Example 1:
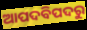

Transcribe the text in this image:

ଆପଦବିପଦରୁ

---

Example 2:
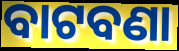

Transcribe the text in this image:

ବାଟବଣା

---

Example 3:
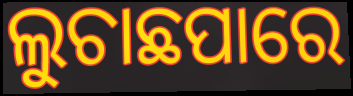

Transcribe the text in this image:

ଲୁଚାଛପାରେ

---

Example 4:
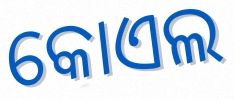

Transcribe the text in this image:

କୋଏଲ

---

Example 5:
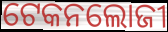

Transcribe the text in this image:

ଟେକନଲୋଜୀ